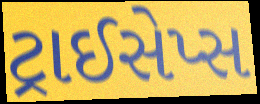
ટ્રાઈસેપ્સ